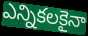
ఎన్నికలకైనా